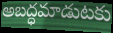
అబద్ధమాడుటకు